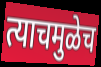
त्याचमुळेच